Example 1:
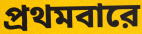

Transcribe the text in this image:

প্রথমবারে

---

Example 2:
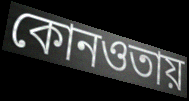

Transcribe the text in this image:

কোনওতায়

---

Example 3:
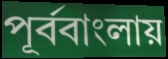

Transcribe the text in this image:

পূর্ববাংলায়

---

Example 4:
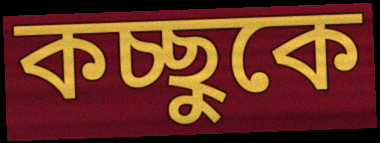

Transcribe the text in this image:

কচ্ছুকে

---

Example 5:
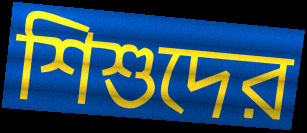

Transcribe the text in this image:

শিশুদের